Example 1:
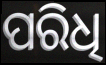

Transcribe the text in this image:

ପରିଧି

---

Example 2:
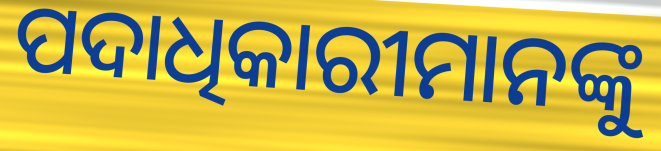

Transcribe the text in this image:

ପଦାଧିକାରୀମାନଙ୍କୁ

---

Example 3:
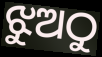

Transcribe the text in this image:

ଝୁଅଠୁ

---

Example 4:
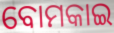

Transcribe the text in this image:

ବୋମକାଇ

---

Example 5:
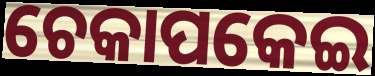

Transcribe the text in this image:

ଚେକାପକେଇ